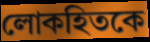
লোকহিতকে